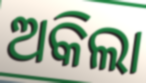
ଅକିଲା